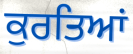
ਕੁਰਤਿਆਂ